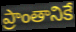
ప్రాంతానికే